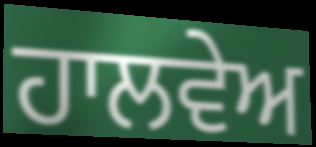
ਹਾਲਵੇਅ